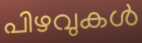
പിഴവുകൾ